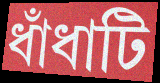
ধাঁধাটি